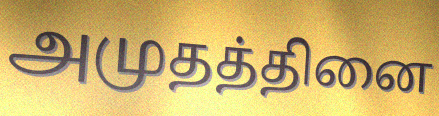
அமுதத்தினை